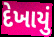
દેખાયું